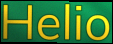
Helio